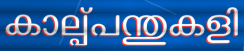
കാല്പ്പന്തുകളി